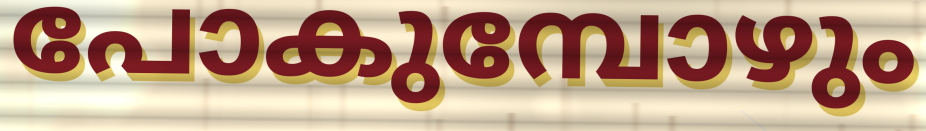
പോകുമ്പോഴും